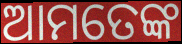
ଆମତେଙ୍କ